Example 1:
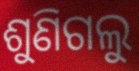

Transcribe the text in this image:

ଶୁଣିଗଲୁ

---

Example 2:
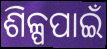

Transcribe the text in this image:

ଶିଳ୍ପପାଇଁ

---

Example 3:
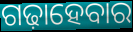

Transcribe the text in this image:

ଗଢ଼ାହେବାର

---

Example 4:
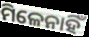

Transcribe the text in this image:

ମିଳେନାହିଁ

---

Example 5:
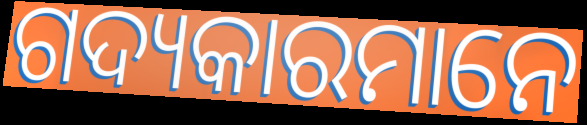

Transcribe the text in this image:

ଗଦ୍ୟକାରମାନେ